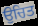
ਉਚਿਤ